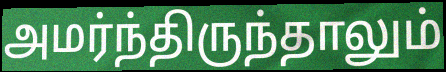
அமர்ந்திருந்தாலும்